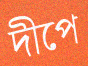
দীপে